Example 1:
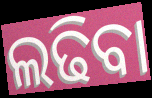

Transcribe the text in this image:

ଲଢିବା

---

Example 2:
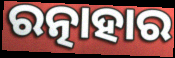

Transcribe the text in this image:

ରତ୍ନାହାର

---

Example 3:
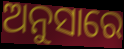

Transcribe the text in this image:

ଅନୁସାରେ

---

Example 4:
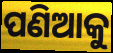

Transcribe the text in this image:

ପଣିଆକୁ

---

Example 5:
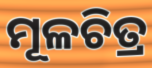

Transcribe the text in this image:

ମୂଳଚିତ୍ର